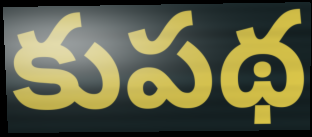
కుపథ